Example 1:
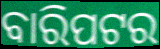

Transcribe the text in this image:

ବାରିପଟର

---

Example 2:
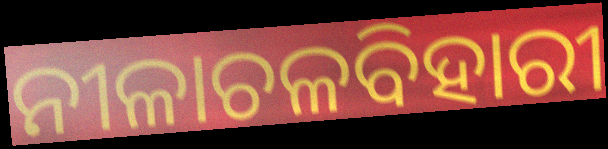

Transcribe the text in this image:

ନୀଳାଚଳବିହାରୀ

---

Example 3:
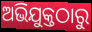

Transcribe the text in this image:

ଅଭିଯୁକ୍ତଠାରୁ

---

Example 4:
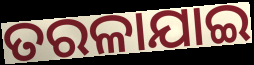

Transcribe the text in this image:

ତରଳାଯାଇ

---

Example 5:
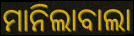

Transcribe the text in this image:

ମାନିଲାବାଲା